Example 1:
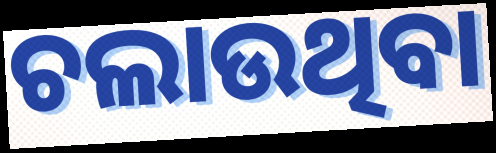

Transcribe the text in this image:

ଚଲାଉଥିବା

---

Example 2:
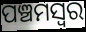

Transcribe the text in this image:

ପଞ୍ଚମସ୍ଵର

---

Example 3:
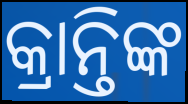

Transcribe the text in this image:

କ୍ରାନ୍ତିଙ୍କ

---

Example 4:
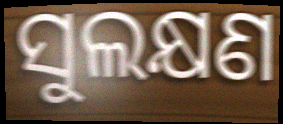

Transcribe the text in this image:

ସୁଲକ୍ଷଣ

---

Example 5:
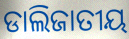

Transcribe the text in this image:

ଡାଲିଜାତୀୟ